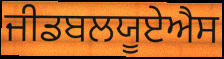
ਜੀਡਬਲਯੂਏਐਸ